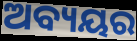
ଅବ୍ୟୟର